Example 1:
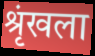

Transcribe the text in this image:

श्रृंखला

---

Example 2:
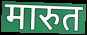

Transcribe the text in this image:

मारुत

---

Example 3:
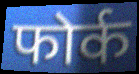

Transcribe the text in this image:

फोर्क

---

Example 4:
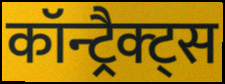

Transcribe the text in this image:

कॉन्‍ट्रैक्‍ट्स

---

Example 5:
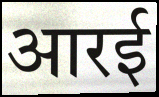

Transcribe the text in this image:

आरई